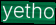
yetho